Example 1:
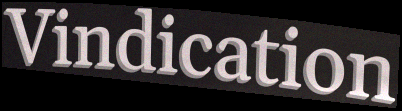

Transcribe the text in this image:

Vindication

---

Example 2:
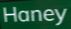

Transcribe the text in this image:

Haney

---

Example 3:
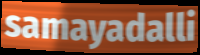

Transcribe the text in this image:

samayadalli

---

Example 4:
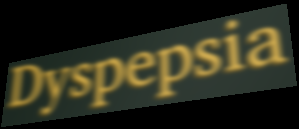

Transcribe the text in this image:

Dyspepsia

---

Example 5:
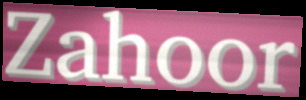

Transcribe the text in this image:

Zahoor